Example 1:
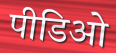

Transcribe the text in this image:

पीडिओ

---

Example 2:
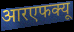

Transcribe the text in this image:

आरएफक्यू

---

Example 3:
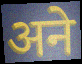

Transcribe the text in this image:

अने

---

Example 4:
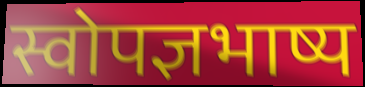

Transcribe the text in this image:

स्वोपज्ञभाष्य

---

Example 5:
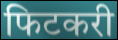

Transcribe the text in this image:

फिटकरी